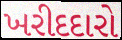
ખરીદદારો